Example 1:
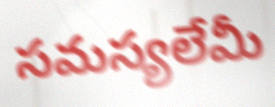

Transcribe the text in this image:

సమస్యలేమీ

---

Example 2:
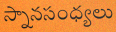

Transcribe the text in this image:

స్నానసంధ్యలు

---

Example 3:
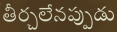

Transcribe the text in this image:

తీర్చలేనప్పుడు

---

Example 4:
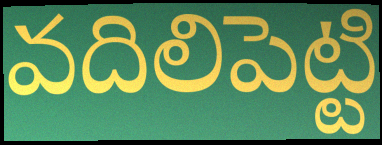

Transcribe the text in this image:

వదిలిపెట్టి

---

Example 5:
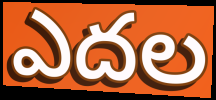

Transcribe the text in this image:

ఎదల